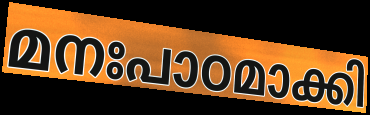
മനഃപാഠമാക്കി